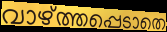
വാഴ്ത്തപ്പെടാതെ